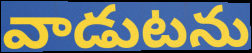
వాడుటను